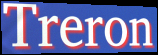
Treron